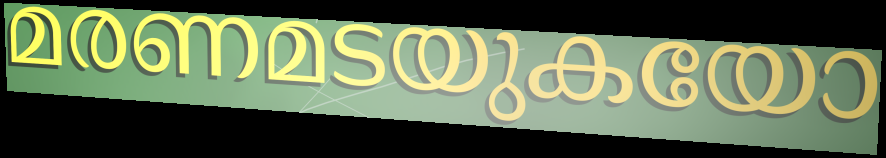
മരണമടയുകയോ